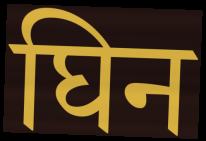
घिन